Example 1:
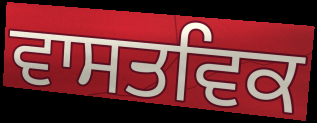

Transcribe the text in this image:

ਵਾਸਤਵਿਕ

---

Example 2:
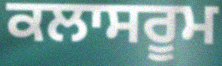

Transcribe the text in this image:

ਕਲਾਸਰੂਮ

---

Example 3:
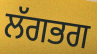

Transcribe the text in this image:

ਲੱਗਭਗ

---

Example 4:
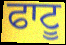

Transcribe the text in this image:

ਫਾਟੂ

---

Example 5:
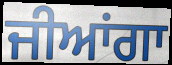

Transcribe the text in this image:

ਜੀਆਂਗਾ